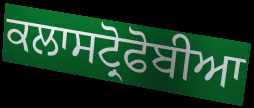
ਕਲਾਸਟ੍ਰੋਫੋਬੀਆ